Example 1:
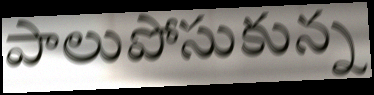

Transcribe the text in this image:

పాలుపోసుకున్న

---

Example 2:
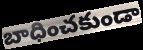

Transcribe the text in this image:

బాధించకుండా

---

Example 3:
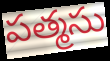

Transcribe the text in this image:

పత్మసు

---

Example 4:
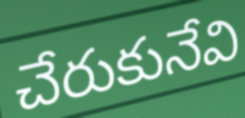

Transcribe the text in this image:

చేరుకునేవి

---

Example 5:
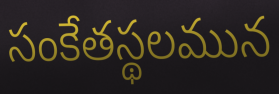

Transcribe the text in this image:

సంకేతస్థలమున